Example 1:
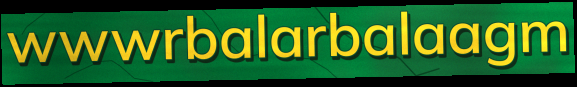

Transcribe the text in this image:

wwwrbalarbalaagm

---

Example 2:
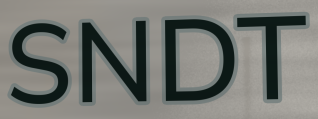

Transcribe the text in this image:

SNDT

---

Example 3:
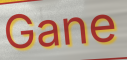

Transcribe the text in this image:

Gane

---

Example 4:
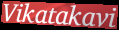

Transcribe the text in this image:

Vikatakavi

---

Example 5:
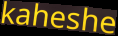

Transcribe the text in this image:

kaheshe